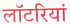
लॉटरियां